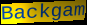
Backgam